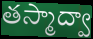
తస్మాద్వా